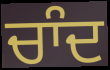
ਚਾੰਦ